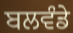
ਬਲਵੰਡੇ